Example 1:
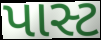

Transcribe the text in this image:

પાસ્ટ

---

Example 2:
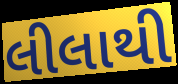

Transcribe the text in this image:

લીલાથી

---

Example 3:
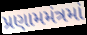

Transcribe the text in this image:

પ્રણામમંત્રમાં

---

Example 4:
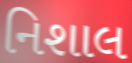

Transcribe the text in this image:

નિશાલ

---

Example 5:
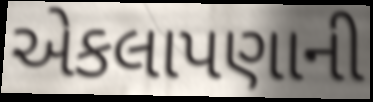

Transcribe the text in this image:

એકલાપણાની